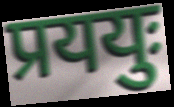
प्रययुः